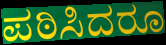
ಪಠಿಸಿದರೂ